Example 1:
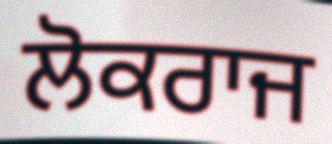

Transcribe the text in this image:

ਲੋਕਰਾਜ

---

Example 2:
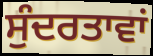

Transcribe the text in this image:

ਸੁੰਦਰਤਾਵਾਂ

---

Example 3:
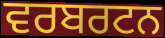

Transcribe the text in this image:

ਵਰਬਰਟਨ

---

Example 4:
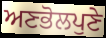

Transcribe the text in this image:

ਅਣਭੋਲਪੁਣੇ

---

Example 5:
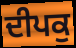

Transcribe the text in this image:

ਦੀਪਕੁ